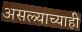
असल्याच्याही